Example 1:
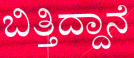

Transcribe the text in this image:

ಬಿತ್ತಿದ್ದಾನೆ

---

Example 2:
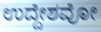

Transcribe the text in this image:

ಉದ್ದೇಶವೋ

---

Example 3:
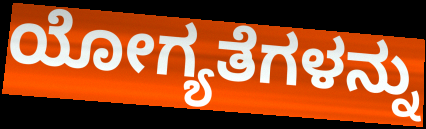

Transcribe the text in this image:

ಯೋಗ್ಯತೆಗಳನ್ನು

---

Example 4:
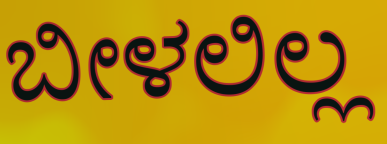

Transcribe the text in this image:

ಬೀಳಲಿಲ್ಲ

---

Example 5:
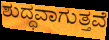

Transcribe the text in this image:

ಶುದ್ಧವಾಗುತ್ತವೆ